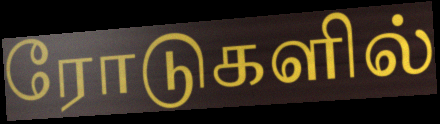
ரோடுகளில்